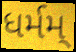
ધર્મમ્